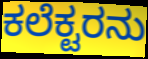
ಕಲೆಕ್ಟರನು